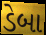
ડેબા